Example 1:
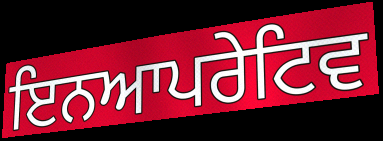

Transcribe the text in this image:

ਇਨਆਪਰੇਟਿਵ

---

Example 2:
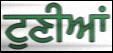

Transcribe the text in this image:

ਟੁਣੀਆਂ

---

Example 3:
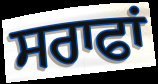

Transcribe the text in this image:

ਸਰਾਫਾਂ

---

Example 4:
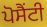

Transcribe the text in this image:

ਪੋਸੈਂਟੀ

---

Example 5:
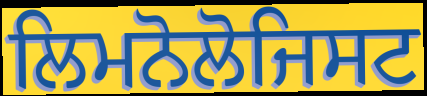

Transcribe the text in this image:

ਲਿਮਨੋਲੋਜਿਸਟ